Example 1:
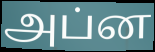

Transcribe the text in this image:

அப்ன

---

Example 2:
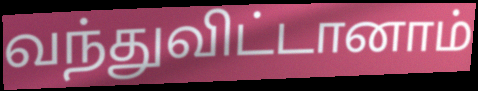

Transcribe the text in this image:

வந்துவிட்டானாம்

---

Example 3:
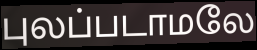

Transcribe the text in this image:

புலப்படாமலே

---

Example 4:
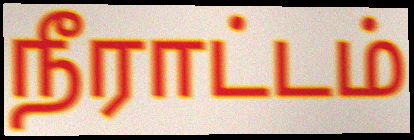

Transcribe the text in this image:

நீராட்டம்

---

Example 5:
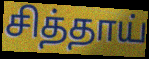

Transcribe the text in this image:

சித்தாய்